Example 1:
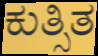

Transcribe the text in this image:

ಕುತ್ಸಿತ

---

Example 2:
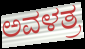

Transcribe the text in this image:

ಅವಳತ್ರ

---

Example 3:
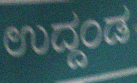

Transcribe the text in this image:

ಉದ್ದಂಡ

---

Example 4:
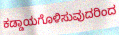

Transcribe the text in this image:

ಕಡ್ಡಾಯಗೊಳಿಸುವುದರಿಂದ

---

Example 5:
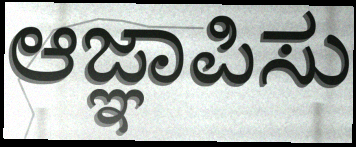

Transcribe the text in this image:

ಆಜ್ಞಾಪಿಸು